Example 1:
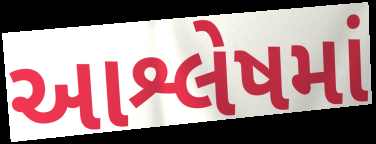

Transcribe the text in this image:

આશ્લેષમાં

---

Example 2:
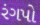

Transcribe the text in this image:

રંગપો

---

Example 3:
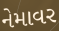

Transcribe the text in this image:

નેમાવર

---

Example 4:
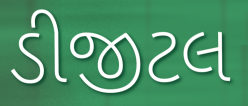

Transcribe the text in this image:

ડીજીટલ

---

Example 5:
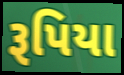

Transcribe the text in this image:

રૂપિયા